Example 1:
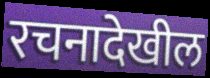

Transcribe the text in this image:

रचनादेखील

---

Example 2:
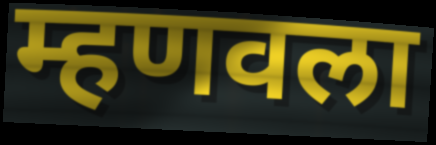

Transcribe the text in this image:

म्हणवला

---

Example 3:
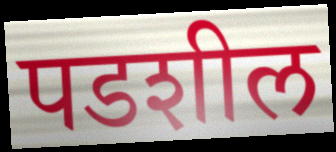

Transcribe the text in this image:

पडशील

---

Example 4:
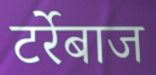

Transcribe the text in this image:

टर्रेबाज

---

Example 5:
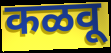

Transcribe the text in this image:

कळवू